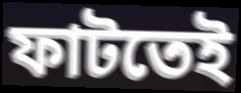
ফাটতেই